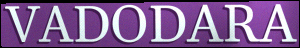
VADODARA